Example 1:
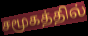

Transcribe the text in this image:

சமூகத்தில்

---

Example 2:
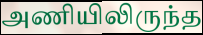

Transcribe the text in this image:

அணியிலிருந்த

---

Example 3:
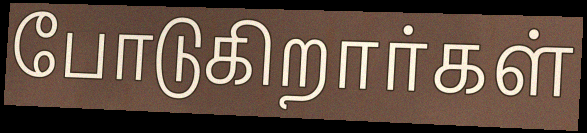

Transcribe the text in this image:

போடுகிறார்கள்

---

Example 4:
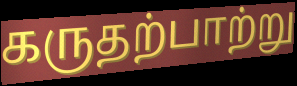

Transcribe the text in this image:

கருதற்பாற்று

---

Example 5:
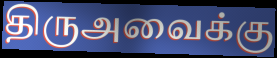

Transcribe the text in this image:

திருஅவைக்கு